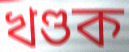
খণ্ডক